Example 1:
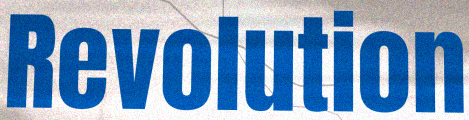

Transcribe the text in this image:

Revolution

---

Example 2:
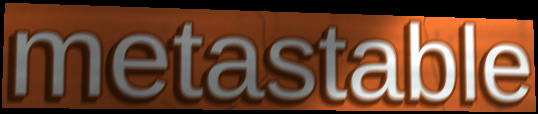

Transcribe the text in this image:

metastable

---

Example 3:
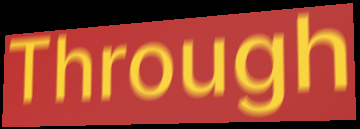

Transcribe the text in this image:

Through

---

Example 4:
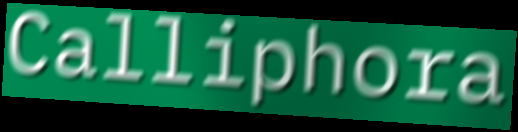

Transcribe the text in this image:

Calliphora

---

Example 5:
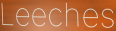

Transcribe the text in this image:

Leeches